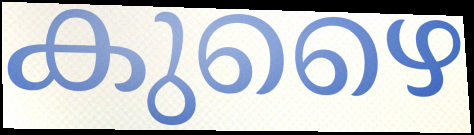
കുഴൈ